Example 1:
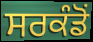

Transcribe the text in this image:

ਸਰਕੰਡੋਂ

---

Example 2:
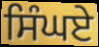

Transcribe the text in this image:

ਸਿੰਘਏ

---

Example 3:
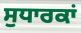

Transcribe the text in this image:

ਸੁਧਾਰਕਾਂ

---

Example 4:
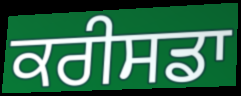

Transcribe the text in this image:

ਕਰੀਸਡਾ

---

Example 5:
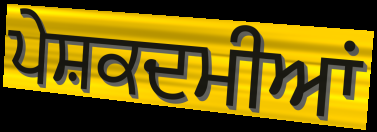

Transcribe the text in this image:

ਪੇਸ਼ਕਦਮੀਆਂ